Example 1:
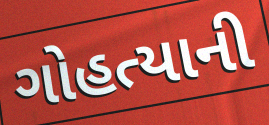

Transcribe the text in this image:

ગોહત્યાની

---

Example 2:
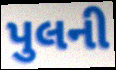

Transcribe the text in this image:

પુલની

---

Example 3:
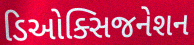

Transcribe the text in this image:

ડિઓક્સિજનેશન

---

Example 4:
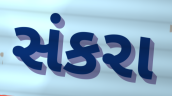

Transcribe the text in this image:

સંકરા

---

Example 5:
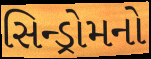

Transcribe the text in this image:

સિન્ડ્રોમનો